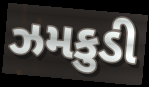
ઝમકુડી